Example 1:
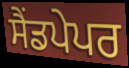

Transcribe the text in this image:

ਸੈਂਡਪੇਪਰ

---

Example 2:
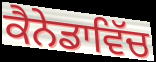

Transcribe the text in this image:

ਕੈਨੇਡਾਵਿੱਚ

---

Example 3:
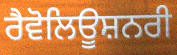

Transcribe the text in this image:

ਰੈਵੋਲਿਊਸ਼ਨਰੀ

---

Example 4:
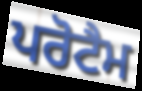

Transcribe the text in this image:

ਪਰੋਟੈਮ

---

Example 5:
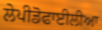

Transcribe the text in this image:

ਲੇਪੀਡੋਫਾਈਲੀਆ